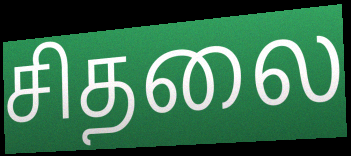
சிதலை